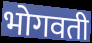
भोगवती